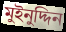
মুইনুদ্দিন